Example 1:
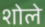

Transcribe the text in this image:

शोले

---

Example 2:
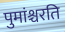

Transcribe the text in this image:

पुमांश्चरति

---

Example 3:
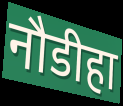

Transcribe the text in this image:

नौडीहा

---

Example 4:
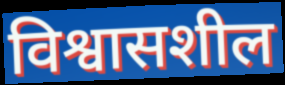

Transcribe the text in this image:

विश्वासशील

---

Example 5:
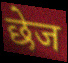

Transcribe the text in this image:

छेज